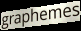
graphemes